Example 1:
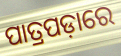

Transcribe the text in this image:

ପାତ୍ରପଡ଼ାରେ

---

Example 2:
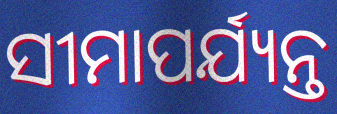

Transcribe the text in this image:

ସୀମାପର୍ଯ୍ୟନ୍ତ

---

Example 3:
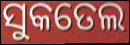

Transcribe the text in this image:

ସୁକତେଲ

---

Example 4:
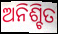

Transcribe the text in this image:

ଅନିଶ୍ଚିତ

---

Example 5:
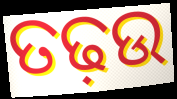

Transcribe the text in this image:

ତଢ଼ଉ